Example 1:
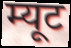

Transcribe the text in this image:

म्यूट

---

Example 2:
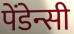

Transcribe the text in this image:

पेंडेन्सी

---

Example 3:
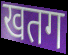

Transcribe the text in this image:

खतग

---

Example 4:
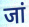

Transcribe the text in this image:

जां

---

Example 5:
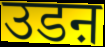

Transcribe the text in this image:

उडऩ